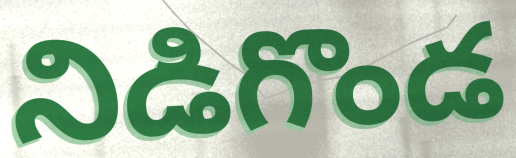
నిడిగొండ